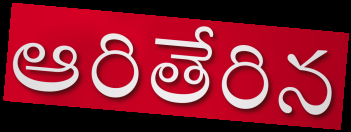
ఆరితేరిన